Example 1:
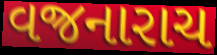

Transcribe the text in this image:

વજ્રનારાચ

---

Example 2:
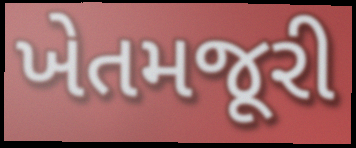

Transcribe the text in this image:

ખેતમજૂરી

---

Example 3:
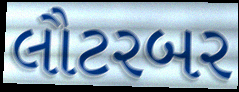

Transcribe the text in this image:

લૌટરબર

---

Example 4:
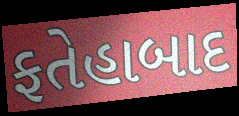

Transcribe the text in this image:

ફતેહાબાદ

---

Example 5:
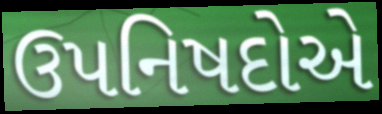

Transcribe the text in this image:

ઉપનિષદોએ